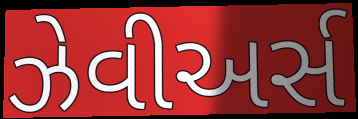
ઝેવીઅર્સ